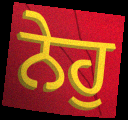
ਨੇਹੁ